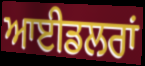
ਆਈਡਲਰਾਂ